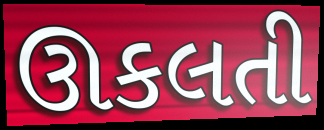
ઊકલતી